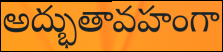
అద్భుతావహంగా